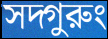
সদ্গুরুং